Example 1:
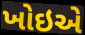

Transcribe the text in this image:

ખોઇએ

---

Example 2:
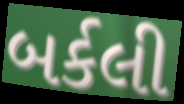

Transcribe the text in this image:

બર્કલી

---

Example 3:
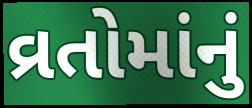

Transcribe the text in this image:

વ્રતોમાંનું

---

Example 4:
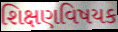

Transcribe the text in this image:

શિક્ષણવિષયક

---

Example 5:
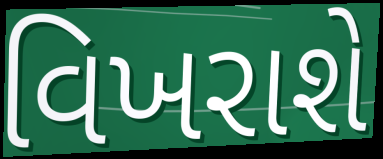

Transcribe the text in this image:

વિખરાશે